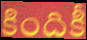
కిందికీ